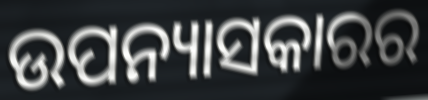
ଉପନ୍ୟାସକାରର